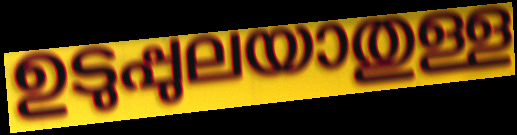
ഉടുപ്പുലയാതുള്ള